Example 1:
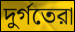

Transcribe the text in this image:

দুর্গতেরা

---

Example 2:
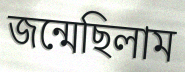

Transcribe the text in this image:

জন্মেছিলাম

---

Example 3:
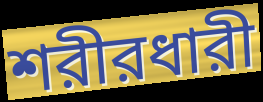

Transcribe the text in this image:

শরীরধারী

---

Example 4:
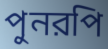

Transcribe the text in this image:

পুনরপি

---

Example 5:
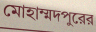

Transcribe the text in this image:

মোহাম্মদপুরের